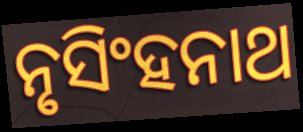
ନୃସିଂହନାଥ